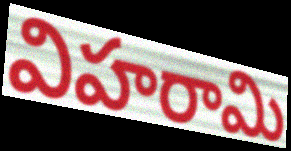
విహరామి